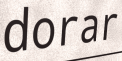
dorar